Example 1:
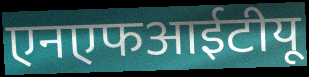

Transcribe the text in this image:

एनएफआईटीयू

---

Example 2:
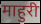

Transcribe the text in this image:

माहुरी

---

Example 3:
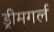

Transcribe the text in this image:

ड्रीमगर्ल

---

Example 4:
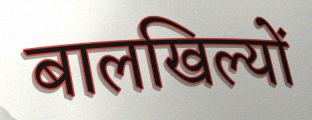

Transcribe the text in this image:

बालखिल्यों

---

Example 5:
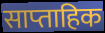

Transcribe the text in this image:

साप्‍ताहिक